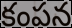
కంపన